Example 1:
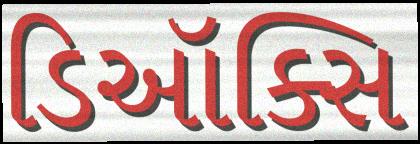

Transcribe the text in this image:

ડિઑક્સિ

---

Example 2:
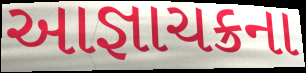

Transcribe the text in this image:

આજ્ઞાચક્રના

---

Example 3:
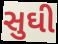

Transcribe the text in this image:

સુઘી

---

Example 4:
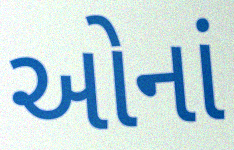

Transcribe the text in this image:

ઓનાં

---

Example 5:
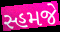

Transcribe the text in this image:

સ્હમજે